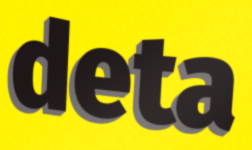
deta